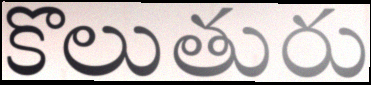
కొలుతురు